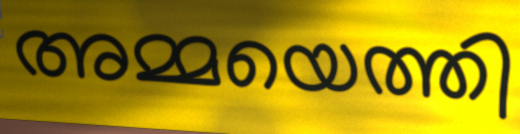
അമ്മയെത്തി